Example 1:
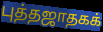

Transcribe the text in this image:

புத்தஜாதகக்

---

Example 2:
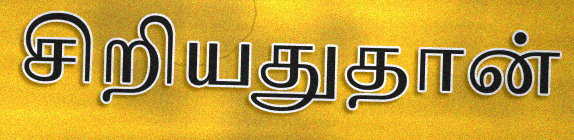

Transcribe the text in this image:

சிறியதுதான்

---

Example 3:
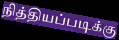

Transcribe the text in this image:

நித்தியப்படிக்கு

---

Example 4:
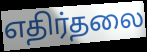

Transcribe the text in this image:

எதிர்தலை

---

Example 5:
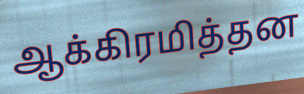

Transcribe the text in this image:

ஆக்கிரமித்தன